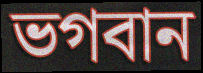
ভগবান